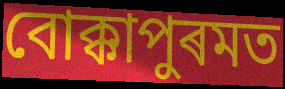
বোক্কাপুৰমত